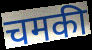
चमकी